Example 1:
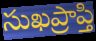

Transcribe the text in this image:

సుఖప్రాప్తి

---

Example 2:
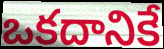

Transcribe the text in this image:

ఒకదానికే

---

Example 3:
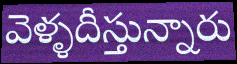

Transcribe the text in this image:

వెళ్ళదీస్తున్నారు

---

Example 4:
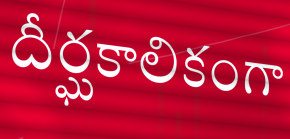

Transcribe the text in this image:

దీర్ఘకాలికంగా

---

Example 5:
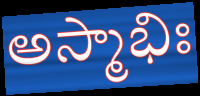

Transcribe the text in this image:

అస్మాభిః